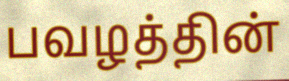
பவழத்தின்